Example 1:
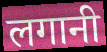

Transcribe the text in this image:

लगानी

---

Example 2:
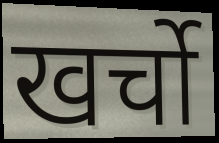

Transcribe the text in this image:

खर्चो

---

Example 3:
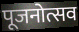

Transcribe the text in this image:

पूजनोत्सव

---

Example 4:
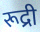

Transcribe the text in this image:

रूद्री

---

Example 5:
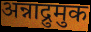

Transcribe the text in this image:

अन्नाद्रुमुक